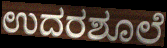
ಉದರಶೂಲೆ